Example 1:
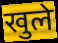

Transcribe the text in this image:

खुले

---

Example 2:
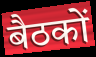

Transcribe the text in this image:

बैठकों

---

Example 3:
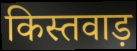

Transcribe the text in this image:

किस्तवाड़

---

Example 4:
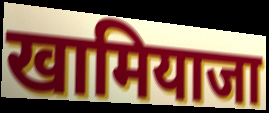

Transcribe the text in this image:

खामियाजा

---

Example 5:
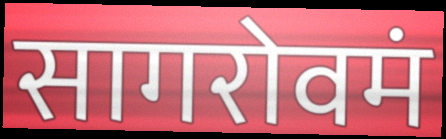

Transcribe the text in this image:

सागरोवमं